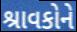
શ્રાવકોને